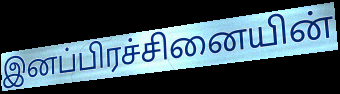
இனப்பிரச்சினையின்